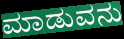
ಮಾಡುವನು